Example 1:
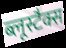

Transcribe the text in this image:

ब्लूस्टैक्स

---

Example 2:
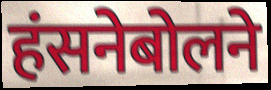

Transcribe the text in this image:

हंसनेबोलने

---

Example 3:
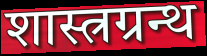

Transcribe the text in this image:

शास्त्रग्रन्थ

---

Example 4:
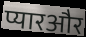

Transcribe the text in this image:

प्यारऔर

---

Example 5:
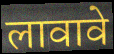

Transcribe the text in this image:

लावावे